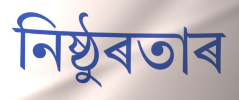
নিষ্ঠুৰতাৰ